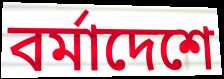
বর্মাদেশে